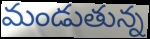
మండుతున్న